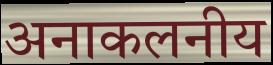
अनाकलनीय